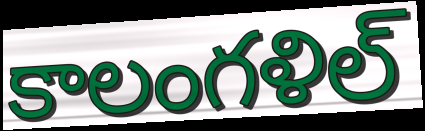
కాలంగళిల్